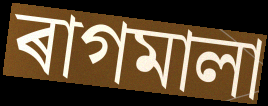
ৰাগমালা